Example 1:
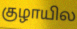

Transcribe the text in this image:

குழாயில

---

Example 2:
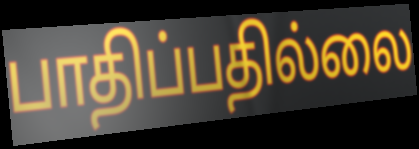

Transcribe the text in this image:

பாதிப்பதில்லை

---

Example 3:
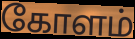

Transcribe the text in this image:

கோளம்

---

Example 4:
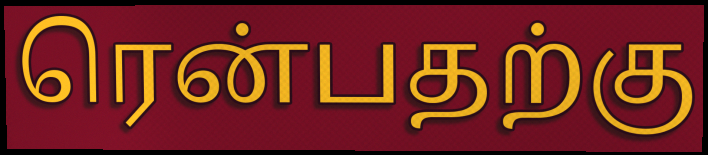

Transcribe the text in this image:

ரென்பதற்கு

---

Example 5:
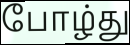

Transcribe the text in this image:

போழ்து